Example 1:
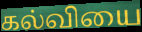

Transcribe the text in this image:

கல்வியை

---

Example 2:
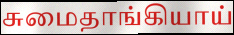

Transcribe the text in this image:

சுமைதாங்கியாய்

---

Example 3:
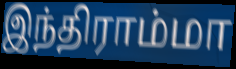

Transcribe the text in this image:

இந்திராம்மா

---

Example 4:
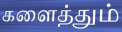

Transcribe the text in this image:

களைத்தும்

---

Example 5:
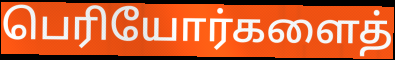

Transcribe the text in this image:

பெரியோர்களைத்